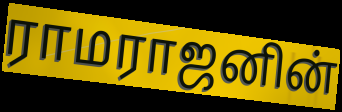
ராமராஜனின்